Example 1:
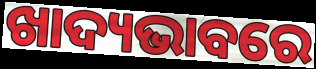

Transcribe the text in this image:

ଖାଦ୍ୟଭାବରେ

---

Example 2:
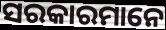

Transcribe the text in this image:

ସରକାରମାନେ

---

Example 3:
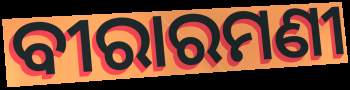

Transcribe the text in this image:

ବୀରାରମଣୀ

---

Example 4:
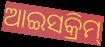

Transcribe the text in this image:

ଆଇସକ୍ରିମ୍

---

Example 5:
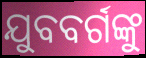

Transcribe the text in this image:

ଯୁବବର୍ଗଙ୍କୁ